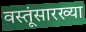
वस्तूंसारख्या